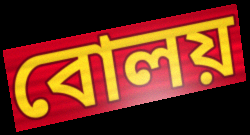
বোলয়